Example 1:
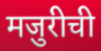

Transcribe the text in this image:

मजुरीची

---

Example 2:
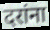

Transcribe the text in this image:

दरांना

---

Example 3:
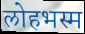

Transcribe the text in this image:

लोहभस्म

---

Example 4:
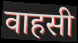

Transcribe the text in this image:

वाहसी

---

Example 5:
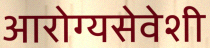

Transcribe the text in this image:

आरोग्यसेवेशी